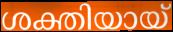
ശക്തിയായ്